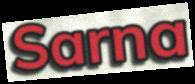
Sarna